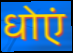
धोएं